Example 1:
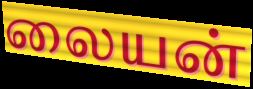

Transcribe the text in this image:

லையன்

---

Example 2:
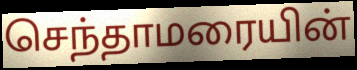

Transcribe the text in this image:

செந்தாமரையின்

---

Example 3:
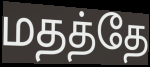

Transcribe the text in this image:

மதத்தே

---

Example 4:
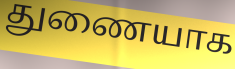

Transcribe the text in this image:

துணையாக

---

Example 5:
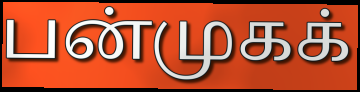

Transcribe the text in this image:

பன்முகக்